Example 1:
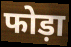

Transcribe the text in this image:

फोड़ा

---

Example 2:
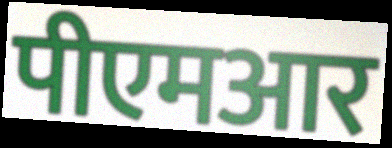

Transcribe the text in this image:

पीएमआर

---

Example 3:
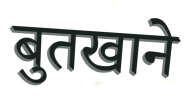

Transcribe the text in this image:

बुतखाने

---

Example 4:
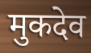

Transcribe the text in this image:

मुकदेव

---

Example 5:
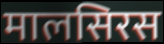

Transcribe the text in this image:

मालसिरस